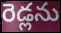
రెడ్లను